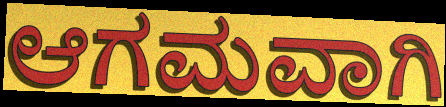
ಆಗಮವಾಗಿ